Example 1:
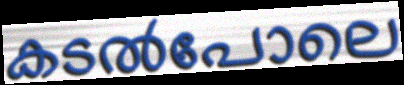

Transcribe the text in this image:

കടൽപോലെ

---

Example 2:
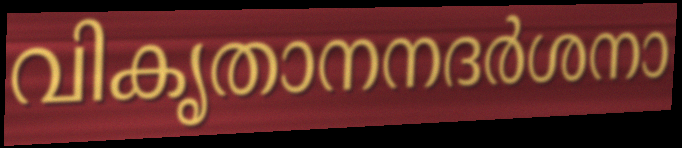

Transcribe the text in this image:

വികൃതാനനദർശനാ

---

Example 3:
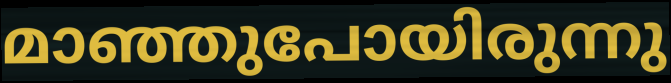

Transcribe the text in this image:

മാഞ്ഞുപോയിരുന്നു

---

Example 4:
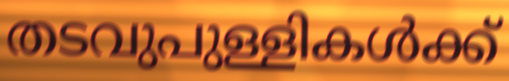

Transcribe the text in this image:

തടവുപുള്ളികൾക്ക്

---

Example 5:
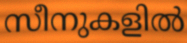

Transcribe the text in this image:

സീനുകളിൽ